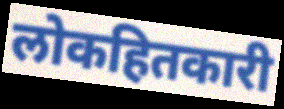
लोकहितकारी